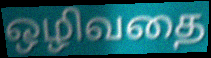
ஒழிவதை